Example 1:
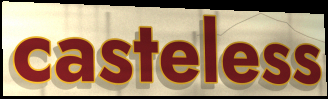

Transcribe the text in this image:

casteless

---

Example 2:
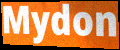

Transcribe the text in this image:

Mydon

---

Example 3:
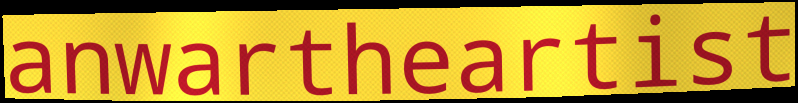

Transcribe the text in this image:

anwartheartist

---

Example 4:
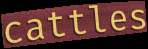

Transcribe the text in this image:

cattles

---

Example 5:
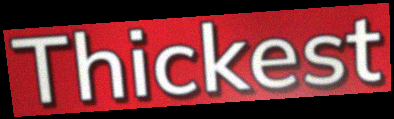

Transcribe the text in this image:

Thickest